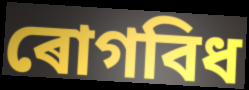
ৰোগবিধ